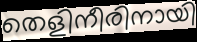
തെളിനീരിനായി